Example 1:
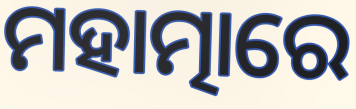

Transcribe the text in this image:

ମହାତ୍ମାରେ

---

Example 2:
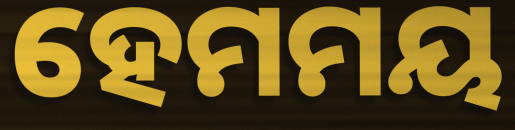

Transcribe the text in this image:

ହେମମୟ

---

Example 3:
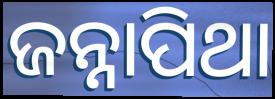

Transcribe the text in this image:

ଜନ୍ନାପିଥା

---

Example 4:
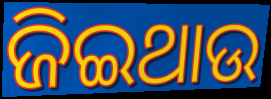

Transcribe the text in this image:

ଜିଇଥାଉ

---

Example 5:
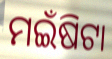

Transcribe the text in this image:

ମଇଁଷିଟା